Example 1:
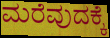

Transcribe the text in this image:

ಮರೆವುದಕ್ಕೆ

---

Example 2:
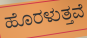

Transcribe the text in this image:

ಹೊರಳುತ್ತವೆ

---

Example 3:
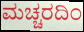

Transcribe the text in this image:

ಮಚ್ಚರದಿಂ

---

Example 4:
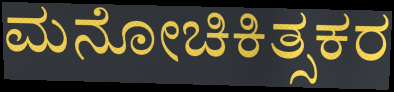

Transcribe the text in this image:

ಮನೋಚಿಕಿತ್ಸಕರ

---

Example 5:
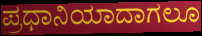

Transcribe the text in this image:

ಪ್ರಧಾನಿಯಾದಾಗಲೂ